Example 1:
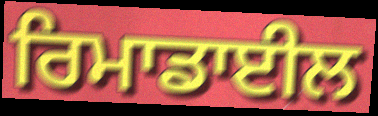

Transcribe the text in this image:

ਰਿਮਾਡਾਈਲ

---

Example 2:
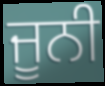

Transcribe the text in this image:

ਜੂਨੀ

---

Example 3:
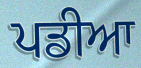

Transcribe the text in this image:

ਪਡੀਆ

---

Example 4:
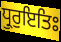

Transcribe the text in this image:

ਧ੍ਰੁਰੁਇਤਿਃ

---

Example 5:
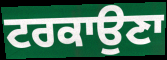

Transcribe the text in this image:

ਟਰਕਾਉਣਾ